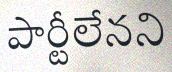
పార్టీలేనని